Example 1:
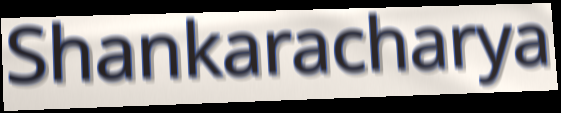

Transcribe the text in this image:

Shankaracharya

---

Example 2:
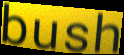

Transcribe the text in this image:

bush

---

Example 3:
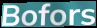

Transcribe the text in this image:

Bofors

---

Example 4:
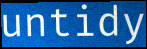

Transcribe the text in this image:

untidy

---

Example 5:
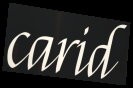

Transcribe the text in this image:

carid